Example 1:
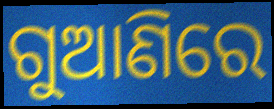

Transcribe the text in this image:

ଗୁଆଣିରେ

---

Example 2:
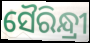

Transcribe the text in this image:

ସୈରିନ୍ଧ୍ରୀ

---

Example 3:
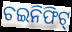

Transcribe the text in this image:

ଚଇନିଫିଟ୍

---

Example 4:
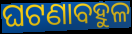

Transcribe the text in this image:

ଘଟଣାବହୁଳ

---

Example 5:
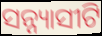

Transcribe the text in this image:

ସନ୍ନ୍ୟାସୀଟି